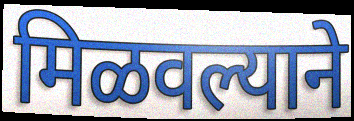
मिळवल्याने